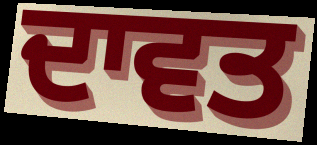
ਦਾਵਤ